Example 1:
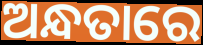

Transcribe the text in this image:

ଅନ୍ଧତାରେ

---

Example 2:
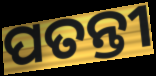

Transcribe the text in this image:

ପତନ୍ତୀ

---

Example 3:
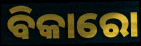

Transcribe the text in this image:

ବିକାରୋ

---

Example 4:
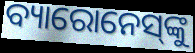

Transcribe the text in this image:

ବ୍ୟାରୋନେସ୍‌ଙ୍କୁ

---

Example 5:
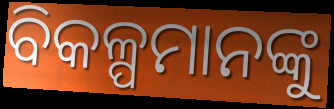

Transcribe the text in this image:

ବିକଳ୍ପମାନଙ୍କୁ